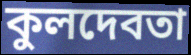
কুলদেবতা